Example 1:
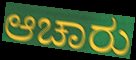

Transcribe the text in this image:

ಆಚಾರು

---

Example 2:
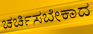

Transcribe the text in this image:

ಚರ್ಚಿಸಬೇಕಾದ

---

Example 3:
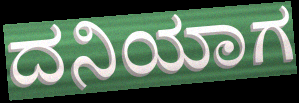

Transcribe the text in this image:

ದನಿಯಾಗ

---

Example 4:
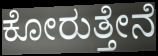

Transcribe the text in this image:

ಕೋರುತ್ತೇನೆ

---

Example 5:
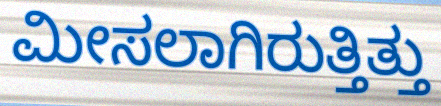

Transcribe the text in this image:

ಮೀಸಲಾಗಿರುತ್ತಿತ್ತು